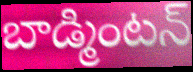
బాడ్మింటన్